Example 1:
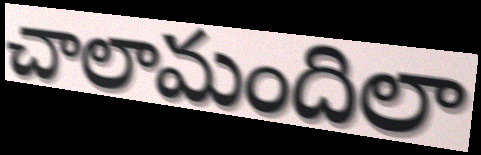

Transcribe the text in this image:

చాలామందిలా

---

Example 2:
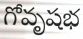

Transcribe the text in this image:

గోవృషభ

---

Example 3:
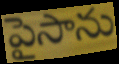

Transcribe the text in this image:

పైసాను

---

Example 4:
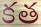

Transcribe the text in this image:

కత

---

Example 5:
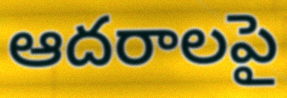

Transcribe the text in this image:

ఆదరాలపై